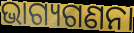
ଭାଗ୍ୟଗଣନା